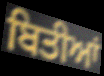
ਬਿਤੀਆਂ